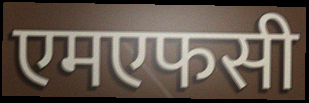
एमएफसी